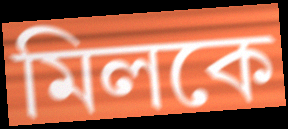
মিলকে